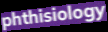
phthisiology